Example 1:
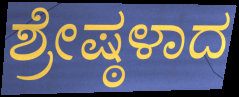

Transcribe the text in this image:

ಶ್ರೇಷ್ಠಳಾದ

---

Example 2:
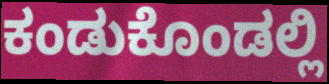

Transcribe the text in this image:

ಕಂಡುಕೊಂಡಲ್ಲಿ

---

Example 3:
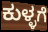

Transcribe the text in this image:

ಕುಳ್ಳಗೆ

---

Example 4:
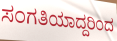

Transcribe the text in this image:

ಸಂಗತಿಯಾದ್ದರಿಂದ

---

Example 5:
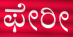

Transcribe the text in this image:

ಫೇರೀ